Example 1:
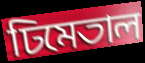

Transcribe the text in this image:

ঢিমেতাল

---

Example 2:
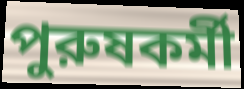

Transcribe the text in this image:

পুরুষকর্মী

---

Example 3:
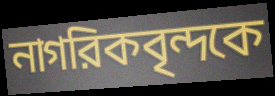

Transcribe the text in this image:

নাগরিকবৃন্দকে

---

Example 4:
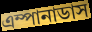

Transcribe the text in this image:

এম্পানাডাস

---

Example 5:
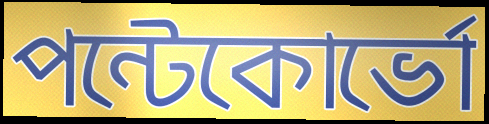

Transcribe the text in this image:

পন্টেকোর্ভো